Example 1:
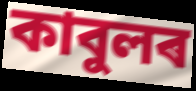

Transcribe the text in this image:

কাবুলৰ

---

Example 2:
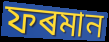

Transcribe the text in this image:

ফৰমান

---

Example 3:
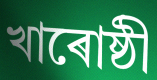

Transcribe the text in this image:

খাৰোষ্ঠী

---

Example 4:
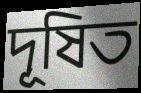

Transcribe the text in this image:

দূষিত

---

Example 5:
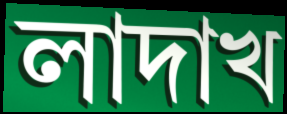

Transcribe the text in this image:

লাদাখ